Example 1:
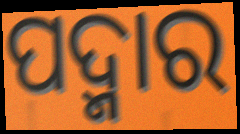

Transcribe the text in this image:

ପଦ୍ମାର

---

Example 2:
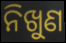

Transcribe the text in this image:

ନିଖୁଣ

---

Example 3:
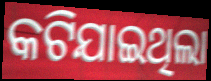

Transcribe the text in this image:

କଟିଯାଇଥିଲା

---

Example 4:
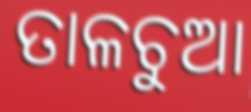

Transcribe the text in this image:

ତାଳଚୁଆ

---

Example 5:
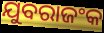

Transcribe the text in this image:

ଯୁବରାଜଂକ